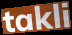
takli